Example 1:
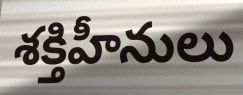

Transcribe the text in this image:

శక్తిహీనులు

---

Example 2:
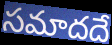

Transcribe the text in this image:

సమాదదే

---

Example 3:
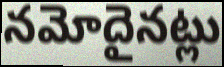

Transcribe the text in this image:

నమోదైనట్లు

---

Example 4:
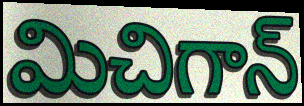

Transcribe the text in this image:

మిచిగాన్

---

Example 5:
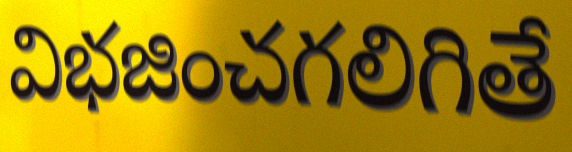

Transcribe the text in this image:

విభజించగలిగితే